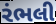
રંભલી